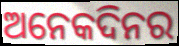
ଅନେକଦିନର